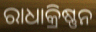
ରାଧାକ୍ରିଷ୍ଣନ